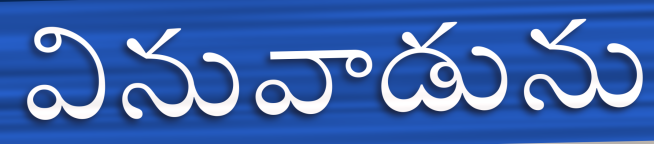
వినువాడును